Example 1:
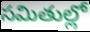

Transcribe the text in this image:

సమితుల్లో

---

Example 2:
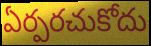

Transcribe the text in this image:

ఏర్పరచుకోదు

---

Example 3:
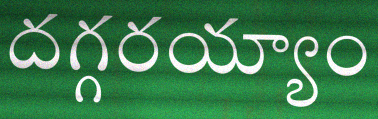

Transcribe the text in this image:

దగ్గరయ్యాం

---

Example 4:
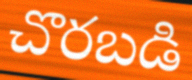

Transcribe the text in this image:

చొరబడి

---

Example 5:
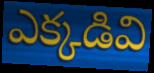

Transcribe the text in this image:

ఎక్కడివి